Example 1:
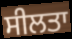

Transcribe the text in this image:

ਸੀਲਤਾ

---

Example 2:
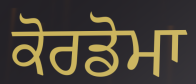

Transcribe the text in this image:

ਕੋਰਡੋਮਾ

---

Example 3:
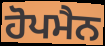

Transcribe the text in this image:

ਹੋਪਮੈਨ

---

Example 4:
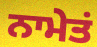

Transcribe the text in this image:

ਨਾਮੇਤਂ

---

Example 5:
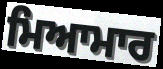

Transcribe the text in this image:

ਮਿਆਮਾਰ